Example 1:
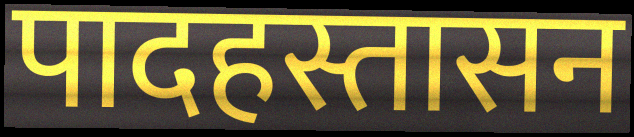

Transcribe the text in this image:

पादहस्तासन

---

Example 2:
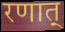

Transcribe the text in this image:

रणात्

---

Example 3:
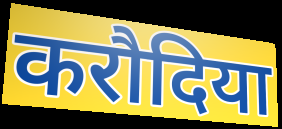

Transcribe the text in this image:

करौदिया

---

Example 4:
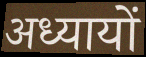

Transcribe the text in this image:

अध्यायों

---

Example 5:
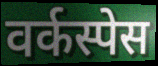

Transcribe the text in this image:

वर्कस्पेस